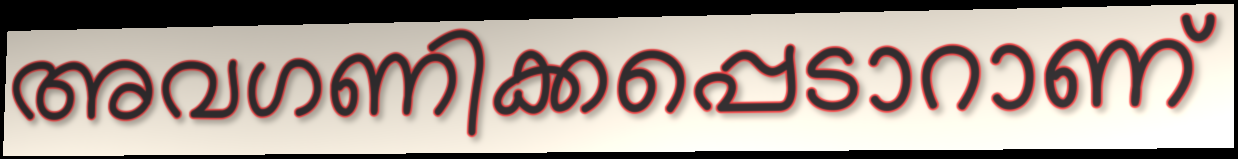
അവഗണിക്കപ്പെടാറാണ്